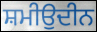
ਸ਼ਮੀਉਦੀਨ